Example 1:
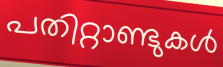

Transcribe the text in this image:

പതിറ്റാണ്ടുകൾ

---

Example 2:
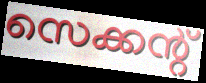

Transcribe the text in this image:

സെക്കന്റ്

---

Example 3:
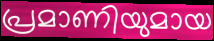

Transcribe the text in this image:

പ്രമാണിയുമായ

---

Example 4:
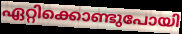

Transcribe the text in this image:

ഏറ്റിക്കൊണ്ടുപോയി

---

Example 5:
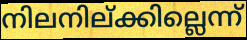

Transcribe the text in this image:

നിലനില്ക്കില്ലെന്ന്